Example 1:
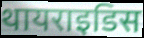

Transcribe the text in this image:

थायराइडिस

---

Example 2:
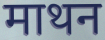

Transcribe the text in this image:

माथन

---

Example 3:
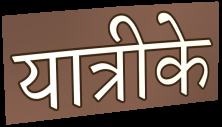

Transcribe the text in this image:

यात्रीके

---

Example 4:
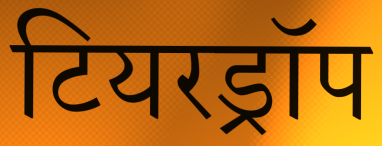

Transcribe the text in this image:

टियरड्रॉप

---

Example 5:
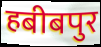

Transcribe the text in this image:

हबीबपुर